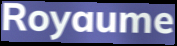
Royaume